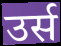
उर्स